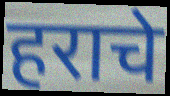
हराचे